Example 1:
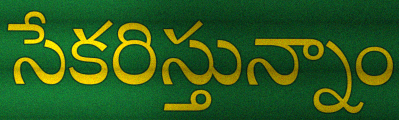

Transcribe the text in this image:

సేకరిస్తున్నాం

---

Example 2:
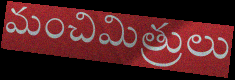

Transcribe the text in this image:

మంచిమిత్రులు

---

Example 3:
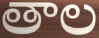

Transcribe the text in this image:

తాల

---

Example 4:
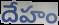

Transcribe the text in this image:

దేహం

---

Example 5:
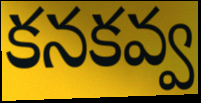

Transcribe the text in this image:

కనకవ్వ